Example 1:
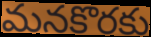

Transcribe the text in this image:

మనకొరకు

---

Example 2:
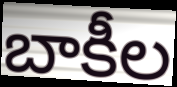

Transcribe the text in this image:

బాకీల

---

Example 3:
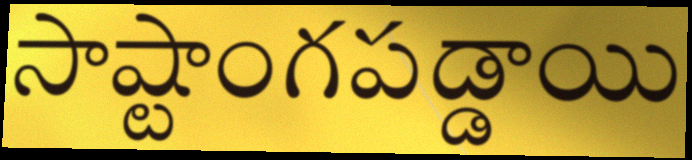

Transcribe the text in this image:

సాష్టాంగపడ్డాయి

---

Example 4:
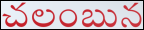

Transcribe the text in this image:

చలంబున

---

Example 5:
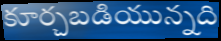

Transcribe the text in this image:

కూర్చబడియున్నది